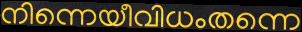
നിന്നെയീവിധംതന്നെ